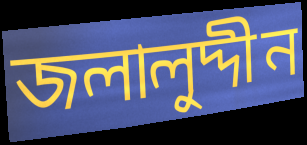
জলালুদ্দীন